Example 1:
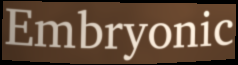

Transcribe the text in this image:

Embryonic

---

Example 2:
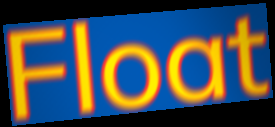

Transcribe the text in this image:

Float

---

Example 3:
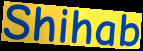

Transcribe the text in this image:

Shihab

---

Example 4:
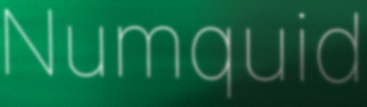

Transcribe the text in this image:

Numquid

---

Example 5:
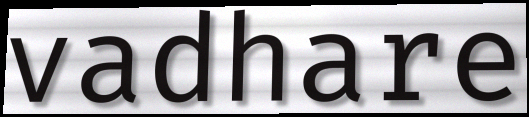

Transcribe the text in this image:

vadhare